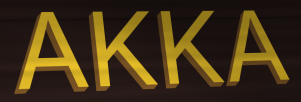
AKKA